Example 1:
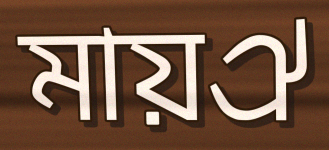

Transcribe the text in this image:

মায়ঐ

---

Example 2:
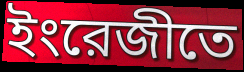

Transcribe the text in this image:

ইংরেজীতে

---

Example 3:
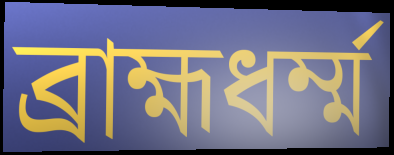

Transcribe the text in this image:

ব্রাহ্মধর্ম্ম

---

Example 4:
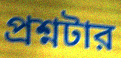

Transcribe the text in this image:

প্রশ্নটার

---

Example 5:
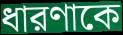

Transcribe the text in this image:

ধারণাকে